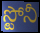
స్టోనీ